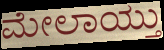
ಮೇಲಾಯ್ತು